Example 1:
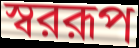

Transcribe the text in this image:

স্বররূপ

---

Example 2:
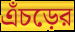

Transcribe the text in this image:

এঁচড়ের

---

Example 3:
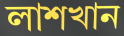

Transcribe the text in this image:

লাশখান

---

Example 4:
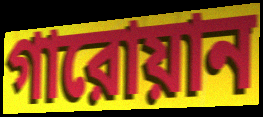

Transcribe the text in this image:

গারোয়ান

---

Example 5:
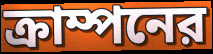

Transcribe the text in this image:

ক্রাম্পনের